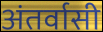
अंतर्वासी